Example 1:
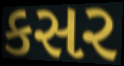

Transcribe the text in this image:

કસર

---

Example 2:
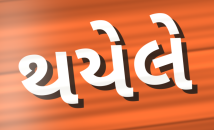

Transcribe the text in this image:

થયેલે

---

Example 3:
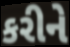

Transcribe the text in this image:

કરીને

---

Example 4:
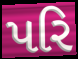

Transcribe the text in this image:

પરિ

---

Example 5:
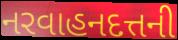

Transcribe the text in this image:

નરવાહનદત્તની